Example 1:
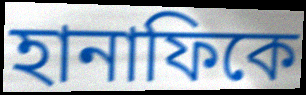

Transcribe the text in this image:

হানাফিকে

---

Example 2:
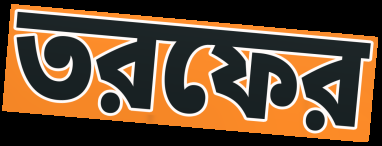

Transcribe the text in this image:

তরফের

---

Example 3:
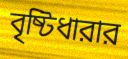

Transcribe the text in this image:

বৃষ্টিধারার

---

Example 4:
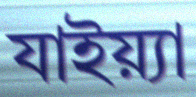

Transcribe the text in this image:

যাইয়্যা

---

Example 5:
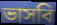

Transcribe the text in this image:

ভাসবি